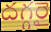
దగ్గరై